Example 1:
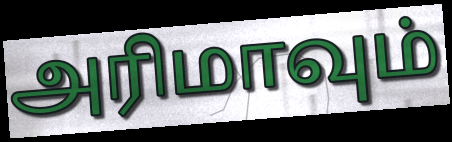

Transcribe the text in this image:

அரிமாவும்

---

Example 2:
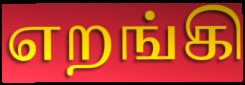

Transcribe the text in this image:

எறங்கி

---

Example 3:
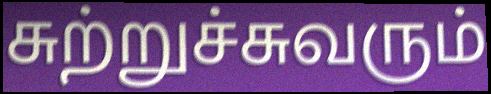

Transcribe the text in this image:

சுற்றுச்சுவரும்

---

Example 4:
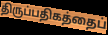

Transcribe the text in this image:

திருப்பதிகத்தைப்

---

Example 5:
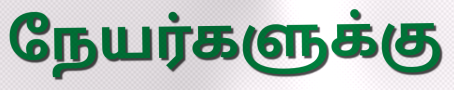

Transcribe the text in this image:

நேயர்களுக்கு